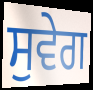
ਸੁਵੇਗ